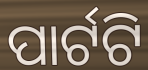
ପାର୍ଟଟି